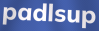
padlsup